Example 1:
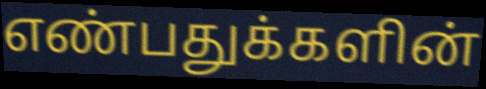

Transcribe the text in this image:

எண்பதுக்களின்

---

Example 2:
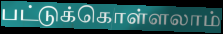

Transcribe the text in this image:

பட்டுக்கொள்ளலாம்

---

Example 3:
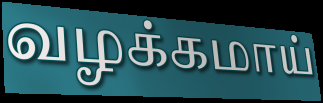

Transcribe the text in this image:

வழக்கமாய்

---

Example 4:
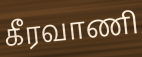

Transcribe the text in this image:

கீரவாணி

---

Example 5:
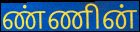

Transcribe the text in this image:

ண்ணின்